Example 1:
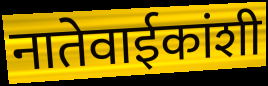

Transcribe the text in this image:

नातेवाईकांशी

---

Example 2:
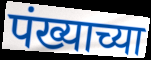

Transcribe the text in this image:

पंख्याच्या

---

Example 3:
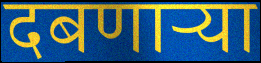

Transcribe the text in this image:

दबणाऱ्या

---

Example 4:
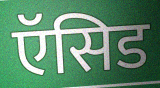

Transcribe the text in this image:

ऍसिड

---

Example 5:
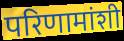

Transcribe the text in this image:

परिणामांशी